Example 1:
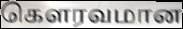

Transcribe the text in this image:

கெளரவமான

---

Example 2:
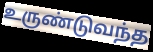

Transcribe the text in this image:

உருண்டுவந்த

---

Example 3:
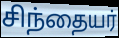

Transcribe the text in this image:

சிந்தையர்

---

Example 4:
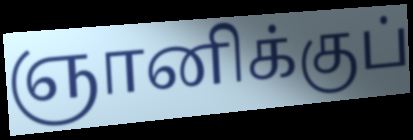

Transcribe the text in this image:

ஞானிக்குப்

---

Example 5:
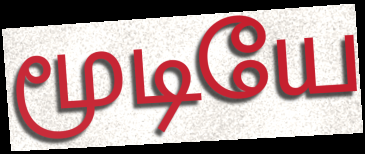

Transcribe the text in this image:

மூடியே